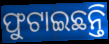
ଫୁଟାଇଛନ୍ତି